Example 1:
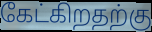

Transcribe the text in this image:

கேட்கிறதற்கு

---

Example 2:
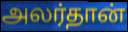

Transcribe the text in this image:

அலர்தான்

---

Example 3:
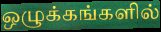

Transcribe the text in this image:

ஒழுக்கங்களில்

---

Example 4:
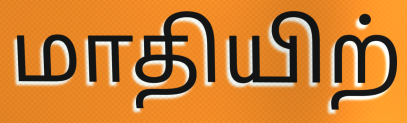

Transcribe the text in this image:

மாதியிற்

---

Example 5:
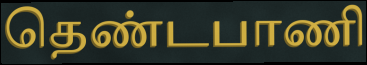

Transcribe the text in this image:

தெண்டபாணி